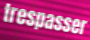
trespasser